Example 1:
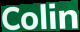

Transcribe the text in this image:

Colin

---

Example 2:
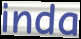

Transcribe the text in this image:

inda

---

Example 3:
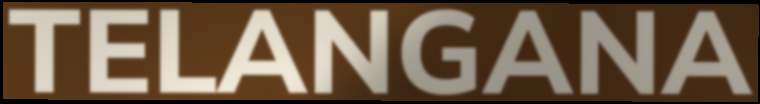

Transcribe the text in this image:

TELANGANA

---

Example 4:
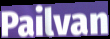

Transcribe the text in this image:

Pailvan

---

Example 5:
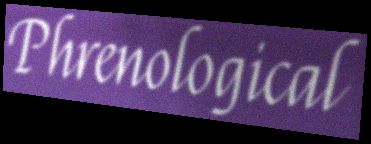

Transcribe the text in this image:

Phrenological